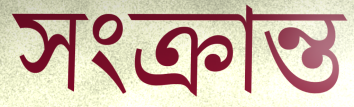
সংক্রান্ত